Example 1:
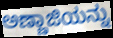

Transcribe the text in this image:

ಅಣ್ಣಾಜಿಯನ್ನು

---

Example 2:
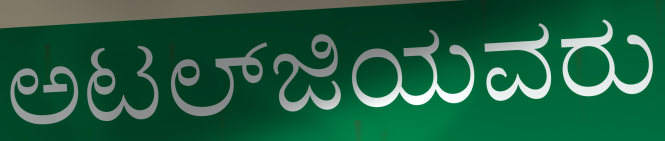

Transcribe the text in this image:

ಅಟಲ್‍ಜಿಯವರು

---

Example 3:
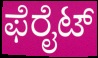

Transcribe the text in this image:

ಫೆರೈಟ್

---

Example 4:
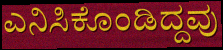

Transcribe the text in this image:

ಎನಿಸಿಕೊಂಡಿದ್ದವು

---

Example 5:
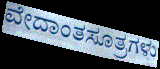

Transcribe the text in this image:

ವೇದಾಂತಸೂತ್ರಗಳು